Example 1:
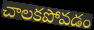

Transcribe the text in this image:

చాలకపోవడం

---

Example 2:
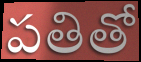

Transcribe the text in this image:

పతితో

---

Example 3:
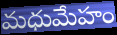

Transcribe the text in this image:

మధుమేహం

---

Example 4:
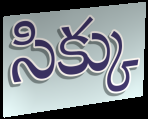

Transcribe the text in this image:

సిక్కు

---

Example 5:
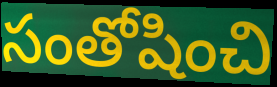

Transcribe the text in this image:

సంతోషించి